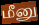
மீனு